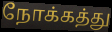
நோக்கத்து